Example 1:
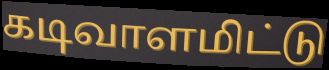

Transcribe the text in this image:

கடிவாளமிட்டு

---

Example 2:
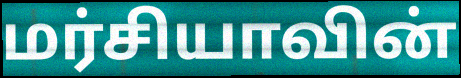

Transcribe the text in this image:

மர்சியாவின்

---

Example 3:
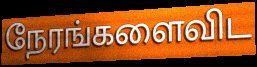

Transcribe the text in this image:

நேரங்களைவிட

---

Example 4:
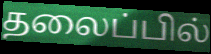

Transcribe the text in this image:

தலைப்பில்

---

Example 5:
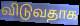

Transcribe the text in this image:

விடுவதாக